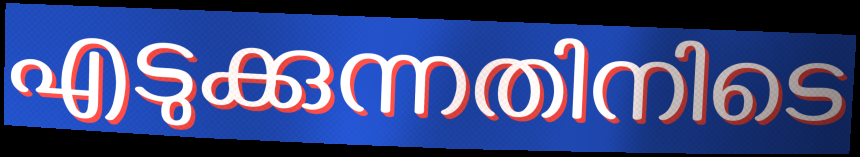
എടുക്കുന്നതിനിടെ